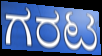
ಗರಟ